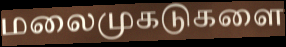
மலைமுகடுகளை